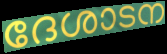
ദേശാടന